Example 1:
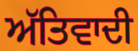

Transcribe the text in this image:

ਅੱਤਿਵਾਦੀ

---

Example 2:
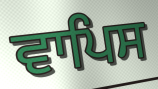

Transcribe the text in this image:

ਵਾਪਿਸ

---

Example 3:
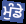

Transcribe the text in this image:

ਮੁੰਡੇ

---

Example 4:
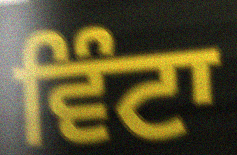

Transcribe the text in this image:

ਵਿੰਟਾ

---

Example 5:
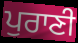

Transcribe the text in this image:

ਪੁਰਾਣੀ